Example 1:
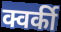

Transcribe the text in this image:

क्वर्की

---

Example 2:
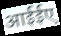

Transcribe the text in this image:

आईईए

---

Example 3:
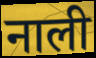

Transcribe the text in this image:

नाली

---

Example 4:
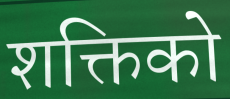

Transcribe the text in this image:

शक्तिको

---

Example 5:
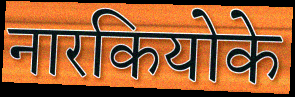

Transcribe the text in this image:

नारकियोके